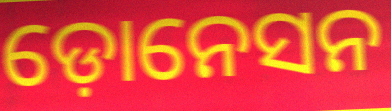
ଡ଼ୋନେସନ